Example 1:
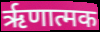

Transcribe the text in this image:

ऋृणात्मक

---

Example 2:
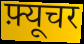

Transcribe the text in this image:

फ़्यूचर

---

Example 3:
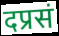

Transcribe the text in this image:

दप्रसं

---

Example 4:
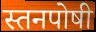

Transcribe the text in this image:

स्तनपोषी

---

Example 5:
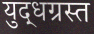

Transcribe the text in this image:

युद्धग्रस्त